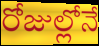
రోజుల్లోనే